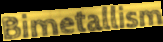
Bimetallism